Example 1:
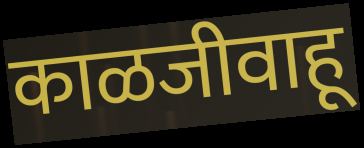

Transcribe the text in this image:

काळजीवाहू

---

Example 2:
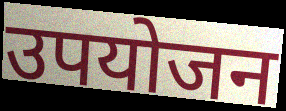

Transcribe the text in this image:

उपयोजन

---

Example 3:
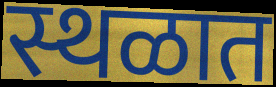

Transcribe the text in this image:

स्थळात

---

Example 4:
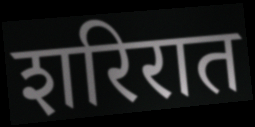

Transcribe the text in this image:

शरिरात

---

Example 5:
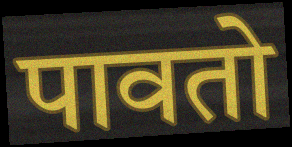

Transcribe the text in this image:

पावतो